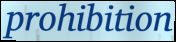
prohibition